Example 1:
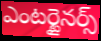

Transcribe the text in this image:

ఎంటర్టైనర్స్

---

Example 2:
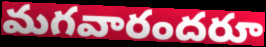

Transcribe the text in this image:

మగవారందరూ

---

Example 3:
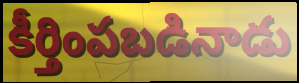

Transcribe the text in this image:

కీర్తింపబడినాడు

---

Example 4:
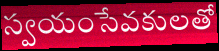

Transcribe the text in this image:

స్వయంసేవకులతో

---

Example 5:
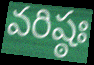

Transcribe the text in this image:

వరిష్ఠః